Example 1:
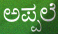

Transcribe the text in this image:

ಅಪ್ಪಲೆ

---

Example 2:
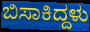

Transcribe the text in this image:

ಬಿಸಾಕಿದ್ದಳು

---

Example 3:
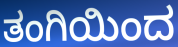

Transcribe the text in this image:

ತಂಗಿಯಿಂದ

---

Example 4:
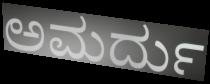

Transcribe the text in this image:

ಅಮರ್ದು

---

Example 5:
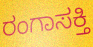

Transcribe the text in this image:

ರಂಗಾಸಕ್ತಿ